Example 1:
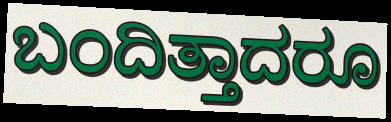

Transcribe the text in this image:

ಬಂದಿತ್ತಾದರೂ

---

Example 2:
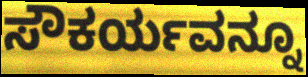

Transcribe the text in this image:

ಸೌಕರ್ಯವನ್ನೂ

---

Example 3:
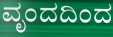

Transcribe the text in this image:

ವೃಂದದಿಂದ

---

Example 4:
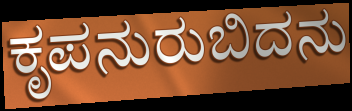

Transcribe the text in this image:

ಕೃಪನುರುಬಿದನು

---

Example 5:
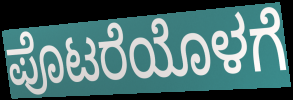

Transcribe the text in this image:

ಪೊಟರೆಯೊಳಗೆ